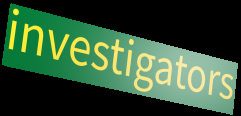
investigators